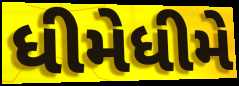
ધીમેધીમે